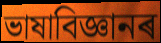
ভাষাবিজ্ঞানৰ